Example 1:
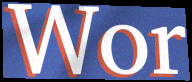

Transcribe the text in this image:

Wor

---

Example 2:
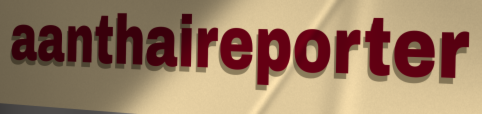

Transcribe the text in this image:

aanthaireporter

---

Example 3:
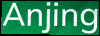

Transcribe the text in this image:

Anjing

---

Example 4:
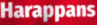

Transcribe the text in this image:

Harappans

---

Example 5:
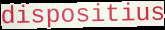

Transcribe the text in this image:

dispositius